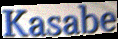
Kasabe